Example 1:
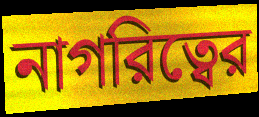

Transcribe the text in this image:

নাগরিত্বের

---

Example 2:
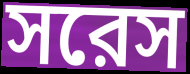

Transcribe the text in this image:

সরেস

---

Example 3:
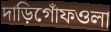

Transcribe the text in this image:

দাড়িগোঁফওলা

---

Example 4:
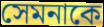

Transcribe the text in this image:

সেমনাকে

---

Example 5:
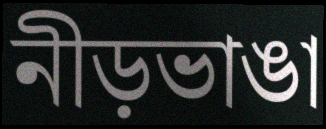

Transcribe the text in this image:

নীড়ভাঙা